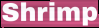
Shrimp